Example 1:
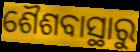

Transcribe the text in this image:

ଶୈଶବାସ୍ଥାରୁ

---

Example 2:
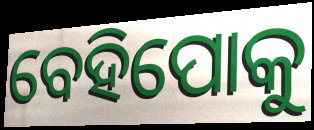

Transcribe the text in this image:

ବେହିପୋକୁ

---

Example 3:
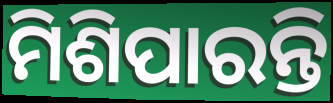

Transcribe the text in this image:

ମିଶିପାରନ୍ତି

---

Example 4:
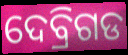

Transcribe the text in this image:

ଦେବ୍ରିଗଡ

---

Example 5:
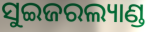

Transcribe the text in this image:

ସୁଇଜରଲ୍ୟାଣ୍ଡ